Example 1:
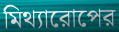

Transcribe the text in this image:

মিথ্যারোপের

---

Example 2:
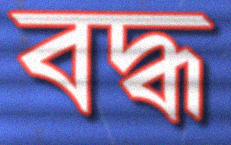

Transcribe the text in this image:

বদ্ধ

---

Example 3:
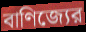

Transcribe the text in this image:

বাণিজ্যের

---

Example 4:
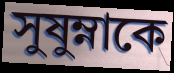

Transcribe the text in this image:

সুষুম্নাকে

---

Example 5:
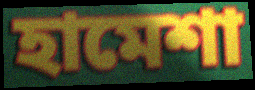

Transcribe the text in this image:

হামেশা